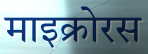
माइक्रोरस